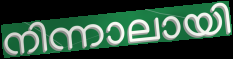
നിന്നാലായി